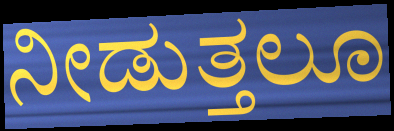
ನೀಡುತ್ತಲೂ